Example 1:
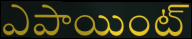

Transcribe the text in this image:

ఎపాయింట్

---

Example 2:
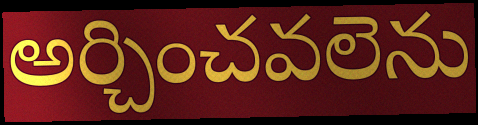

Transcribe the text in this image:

అర్చించవలెను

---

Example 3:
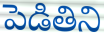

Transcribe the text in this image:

పెడితిని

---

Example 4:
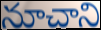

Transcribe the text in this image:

నూచాని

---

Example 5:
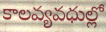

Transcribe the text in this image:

కాలవ్యవధుల్లో